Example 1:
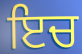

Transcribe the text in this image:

ਇਚ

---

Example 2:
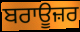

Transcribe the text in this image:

ਬਰਾਊਜ਼ਰ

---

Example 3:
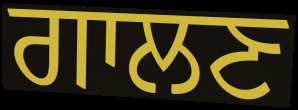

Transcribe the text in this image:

ਗਾਲਣ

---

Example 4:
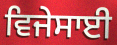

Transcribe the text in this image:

ਵਿਜੇਸਾਈ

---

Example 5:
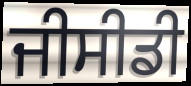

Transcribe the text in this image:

ਜੀਸੀਡੀ